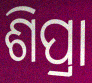
ଶିପ୍ରା